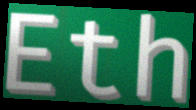
Eth